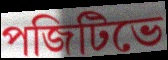
পজিটিভে